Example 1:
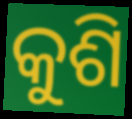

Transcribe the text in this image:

କୁଶି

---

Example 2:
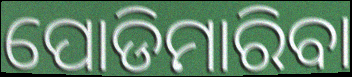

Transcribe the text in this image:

ପୋଡିମାରିବା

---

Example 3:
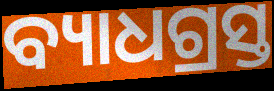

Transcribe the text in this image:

ବ୍ୟାଧଗ୍ରସ୍ତ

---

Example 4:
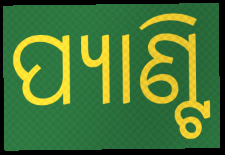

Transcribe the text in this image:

ପ୍ୟାଣ୍ଟି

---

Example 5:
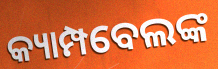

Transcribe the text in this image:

କ୍ୟାମ୍ପବେଲଙ୍କ